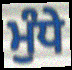
ਮੁੰਧੇ